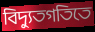
বিদ্যুতগতিতে